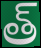
త్